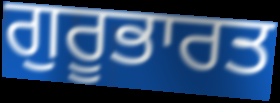
ਗੁਰੂਭਾਰਤ